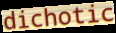
dichotic